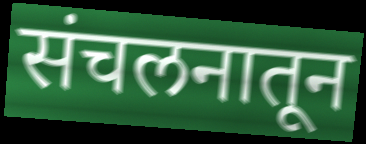
संचलनातून